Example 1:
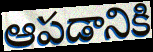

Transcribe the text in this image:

ఆపడానికి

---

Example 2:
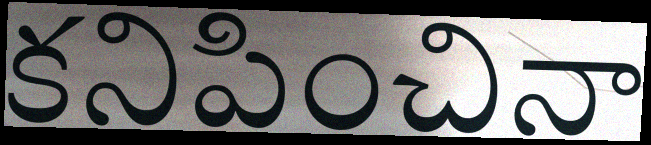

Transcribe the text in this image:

కనిపించినా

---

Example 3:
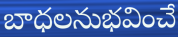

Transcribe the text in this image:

బాధలనుభవించే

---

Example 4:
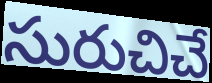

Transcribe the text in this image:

సురుచిచే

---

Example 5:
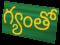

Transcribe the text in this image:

గ్యంతో